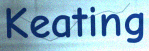
Keating